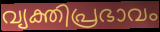
വ്യക്തിപ്രഭാവം